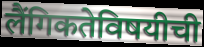
लैंगिकतेविषयीची